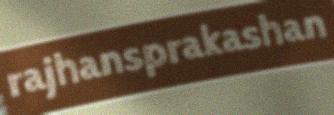
rajhansprakashan